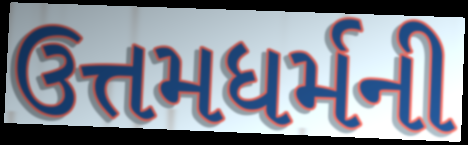
ઉત્તમધર્મની